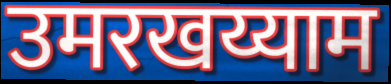
उमरखय्याम